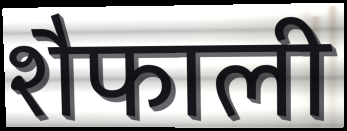
शैफाली